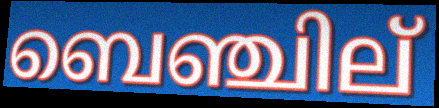
ബെഞ്ചില്